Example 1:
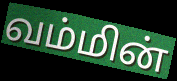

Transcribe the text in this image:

வம்மின்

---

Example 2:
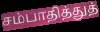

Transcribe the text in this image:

சம்பாதித்துத்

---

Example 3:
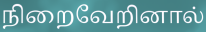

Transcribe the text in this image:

நிறைவேறினால்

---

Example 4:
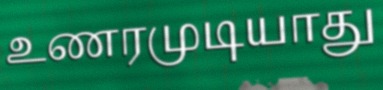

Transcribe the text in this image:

உணரமுடியாது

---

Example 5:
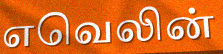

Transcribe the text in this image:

எவெலின்